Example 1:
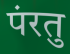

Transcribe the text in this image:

पंरतु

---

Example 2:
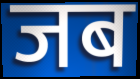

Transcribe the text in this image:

जब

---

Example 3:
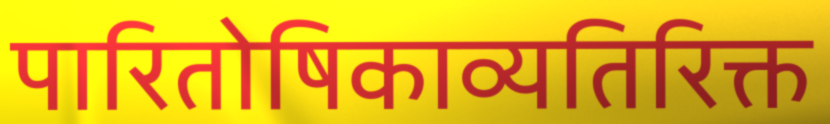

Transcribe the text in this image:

पारितोषिकाव्यतिरिक्त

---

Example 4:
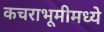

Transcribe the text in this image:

कचराभूमीमध्ये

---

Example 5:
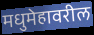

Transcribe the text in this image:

मधुमेहावरील